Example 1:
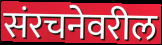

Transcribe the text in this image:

संरचनेवरील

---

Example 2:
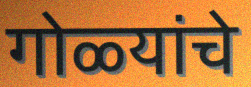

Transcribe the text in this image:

गोळ्यांचे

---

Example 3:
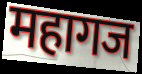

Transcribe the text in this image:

महागज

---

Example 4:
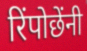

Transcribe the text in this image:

रिंपोछेंनी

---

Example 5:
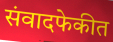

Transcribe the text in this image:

संवादफेकीत